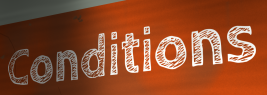
Conditions